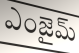
ఎంజైమ్